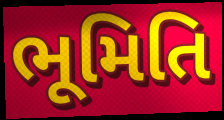
ભૂમિતિ